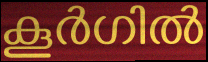
കൂർഗിൽ